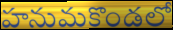
హనుమకొండలో